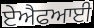
ਏਐਫਆਈ